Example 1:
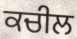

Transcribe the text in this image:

ਕਚੀਲ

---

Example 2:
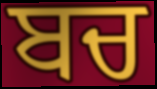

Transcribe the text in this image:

ਬਚ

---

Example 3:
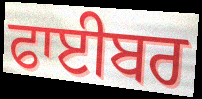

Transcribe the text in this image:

ਫਾਈਬਰ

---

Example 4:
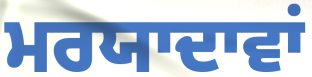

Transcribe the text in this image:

ਮਰਯਾਦਾਵਾਂ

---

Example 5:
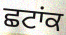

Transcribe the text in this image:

ਛਟਾਂਕ